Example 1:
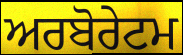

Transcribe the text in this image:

ਅਰਬੋਰੇਟਮ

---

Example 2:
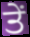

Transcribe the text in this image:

ਤੇੰ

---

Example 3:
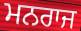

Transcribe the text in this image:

ਮਨਰਾਜ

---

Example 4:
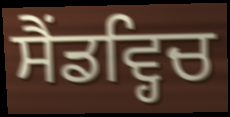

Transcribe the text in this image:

ਸੈਂਡਵ੍ਹਿਚ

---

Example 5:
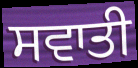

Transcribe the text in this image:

ਸਵਾਤੀ